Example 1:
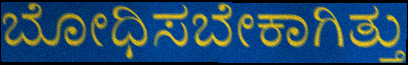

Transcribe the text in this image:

ಬೋಧಿಸಬೇಕಾಗಿತ್ತು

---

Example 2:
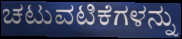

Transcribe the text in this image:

ಚಟುವಟಿಕೆಗಳನ್ನು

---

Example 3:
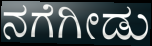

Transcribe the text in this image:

ನಗೆಗೀಡು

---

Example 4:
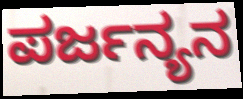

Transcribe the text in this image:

ಪರ್ಜನ್ಯನ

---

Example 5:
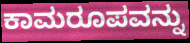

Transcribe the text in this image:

ಕಾಮರೂಪವನ್ನು